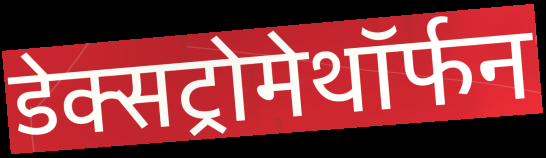
डेक्सट्रोमेथॉर्फन